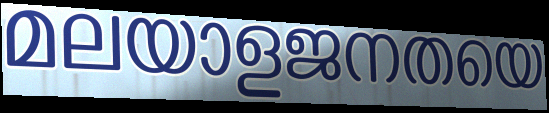
മലയാളജനതയെ